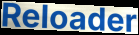
Reloader